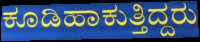
ಕೂಡಿಹಾಕುತ್ತಿದ್ದರು